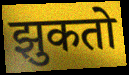
झुकतो